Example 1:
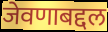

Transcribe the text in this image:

जेवणाबद्दल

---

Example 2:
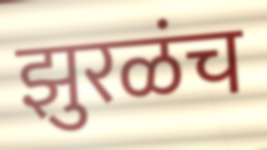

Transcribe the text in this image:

झुरळंच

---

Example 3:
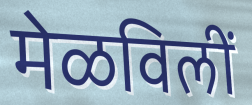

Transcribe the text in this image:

मेळविलीं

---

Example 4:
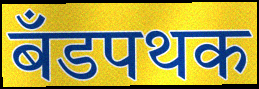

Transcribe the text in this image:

बँडपथक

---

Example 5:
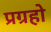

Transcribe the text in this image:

प्रग्रहो